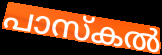
പാസ്കൽ